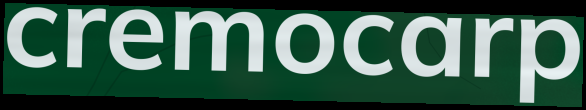
cremocarp